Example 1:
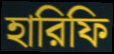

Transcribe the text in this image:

হারিফি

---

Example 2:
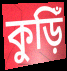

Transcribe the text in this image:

কুড়িঁ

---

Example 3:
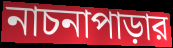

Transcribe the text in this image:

নাচনাপাড়ার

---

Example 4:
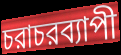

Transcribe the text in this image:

চরাচরব্যাপী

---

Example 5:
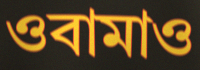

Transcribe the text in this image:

ওবামাও